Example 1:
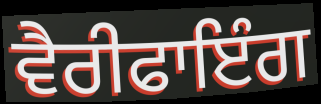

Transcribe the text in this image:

ਵੈਰੀਫਾਇੰਗ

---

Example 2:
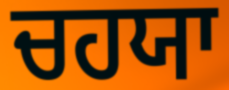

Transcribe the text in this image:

ਚਹਯਾ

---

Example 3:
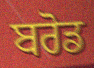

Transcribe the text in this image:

ਬਰੋਡ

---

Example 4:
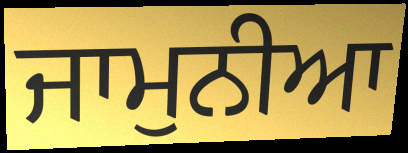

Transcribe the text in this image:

ਜਾਮੁਨੀਆ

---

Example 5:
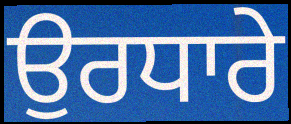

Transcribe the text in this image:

ਉਰਧਾਰੇ